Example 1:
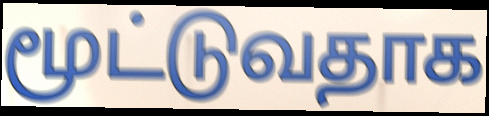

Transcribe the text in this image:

மூட்டுவதாக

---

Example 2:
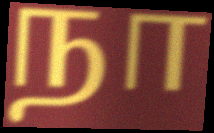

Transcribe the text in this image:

நா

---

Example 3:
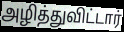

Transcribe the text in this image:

அழித்துவிட்டார்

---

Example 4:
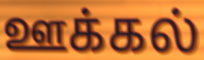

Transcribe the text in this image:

ஊக்கல்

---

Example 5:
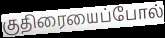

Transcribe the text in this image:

குதிரையைப்போல்